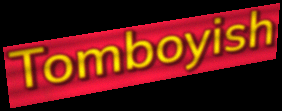
Tomboyish